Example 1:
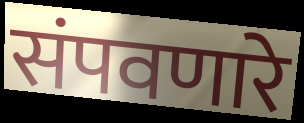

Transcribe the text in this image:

संपवणारे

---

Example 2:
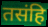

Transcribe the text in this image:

तसंहि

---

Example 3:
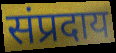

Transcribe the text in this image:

संप्रदाय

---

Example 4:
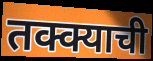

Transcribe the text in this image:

तक्क्याची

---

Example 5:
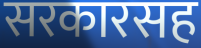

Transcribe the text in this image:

सरकारसह